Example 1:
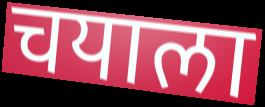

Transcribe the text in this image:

चयाला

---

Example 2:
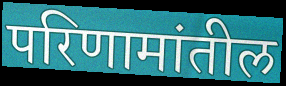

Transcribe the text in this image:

परिणामांतील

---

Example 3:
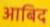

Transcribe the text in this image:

आबिद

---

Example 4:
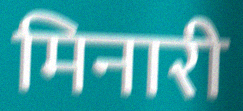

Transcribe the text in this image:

मिनारी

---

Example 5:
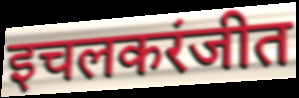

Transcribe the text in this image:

इचलकरंजीत